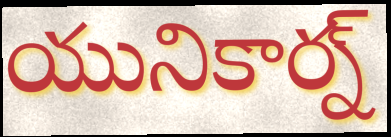
యునికార్న్